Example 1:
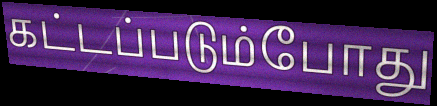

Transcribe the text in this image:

கட்டப்படும்போது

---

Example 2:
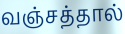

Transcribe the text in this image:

வஞ்சத்தால்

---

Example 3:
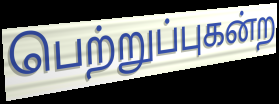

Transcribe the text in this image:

பெற்றுப்புகன்ற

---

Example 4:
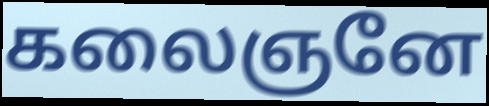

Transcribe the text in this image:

கலைஞனே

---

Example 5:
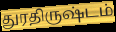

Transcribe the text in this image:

துரதிருஷ்டம்